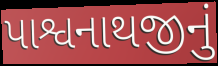
પાશ્વનાથજીનું